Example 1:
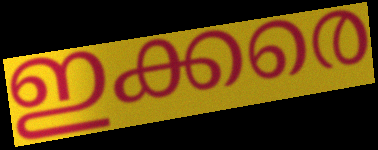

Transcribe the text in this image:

ഇക്കരെ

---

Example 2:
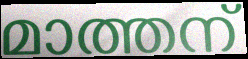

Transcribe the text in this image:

മാത്തന്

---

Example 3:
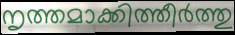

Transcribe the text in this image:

നൃത്തമാക്കിത്തീർത്തു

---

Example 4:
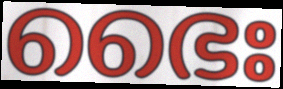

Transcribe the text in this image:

ഭൈഃ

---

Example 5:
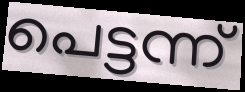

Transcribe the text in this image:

പെട്ടന്ന്